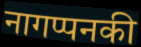
नागप्पनकी